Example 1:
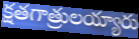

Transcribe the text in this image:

క్షతగాత్రులయ్యారు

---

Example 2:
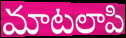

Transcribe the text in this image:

మాటలాపి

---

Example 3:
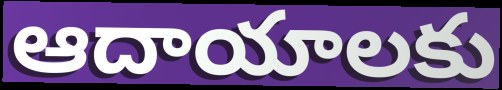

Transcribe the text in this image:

ఆదాయాలకు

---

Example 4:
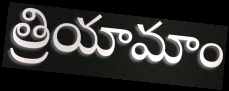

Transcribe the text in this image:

త్రియామాం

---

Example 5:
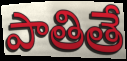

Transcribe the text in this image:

పాతితే